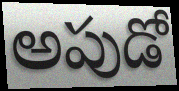
అపుడో